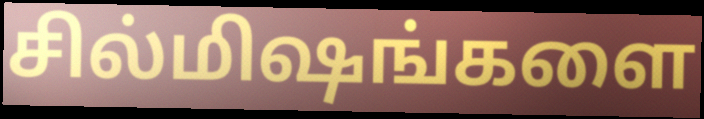
சில்மிஷங்களை